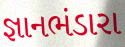
જ્ઞાનભંડારા